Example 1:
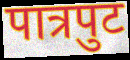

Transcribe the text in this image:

पात्रपुट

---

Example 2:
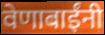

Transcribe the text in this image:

वेणाबाईंनी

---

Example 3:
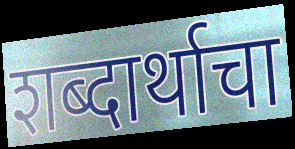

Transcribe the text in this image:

शब्दार्थाचा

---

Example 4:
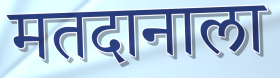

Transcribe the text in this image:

मतदानाला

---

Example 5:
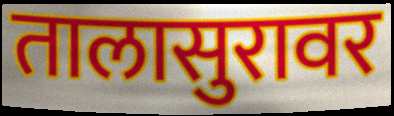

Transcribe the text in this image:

तालासुरावर